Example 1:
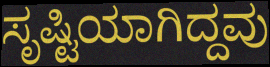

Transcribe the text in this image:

ಸೃಷ್ಟಿಯಾಗಿದ್ದವು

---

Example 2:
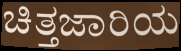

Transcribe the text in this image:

ಚಿತ್ತಜಾರಿಯ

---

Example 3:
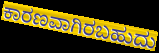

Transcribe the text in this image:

ಕಾರಣವಾಗಿರಬಹುದು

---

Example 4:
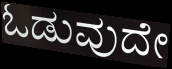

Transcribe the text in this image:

ಓಡುವುದೇ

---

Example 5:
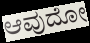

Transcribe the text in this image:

ಆವುದೋ